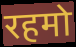
रहमो